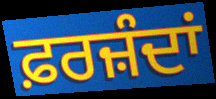
ਫ਼ਰਜ਼ੰਦਾਂ